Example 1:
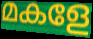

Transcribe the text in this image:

മകളേ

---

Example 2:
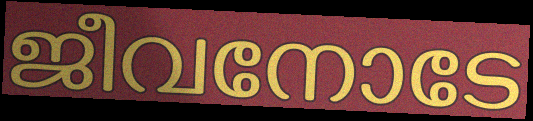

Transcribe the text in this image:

ജീവനോടേ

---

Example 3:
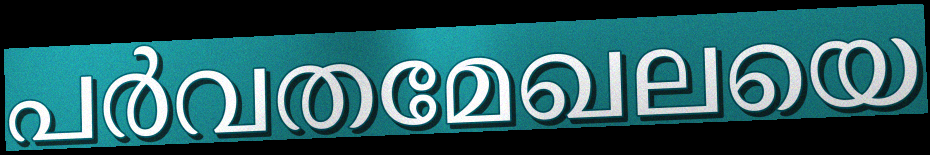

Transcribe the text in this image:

പർവതമേഖലയെ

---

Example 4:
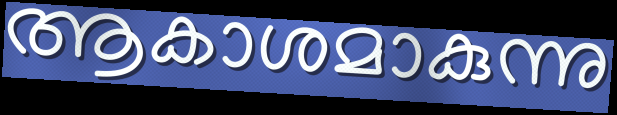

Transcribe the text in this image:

ആകാശമാകുന്നു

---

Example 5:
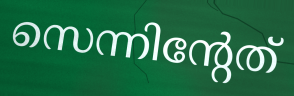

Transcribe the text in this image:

സെന്നിന്റേത്